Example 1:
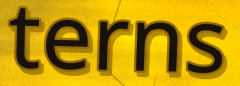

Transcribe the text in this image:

terns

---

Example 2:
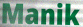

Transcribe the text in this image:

Manik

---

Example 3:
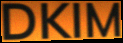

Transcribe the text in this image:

DKIM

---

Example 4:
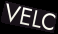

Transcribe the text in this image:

VELC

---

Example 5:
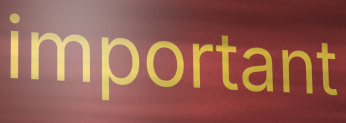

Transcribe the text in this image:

important